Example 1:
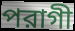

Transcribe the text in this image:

পরাগী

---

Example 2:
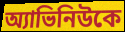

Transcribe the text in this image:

অ্যাভিনিউকে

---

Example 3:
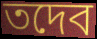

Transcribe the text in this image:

তদেব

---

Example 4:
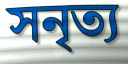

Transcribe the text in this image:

সনৃত্য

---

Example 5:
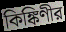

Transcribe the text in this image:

কিঙ্কিণীর